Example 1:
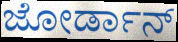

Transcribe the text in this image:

ಜೋರ್ಡಾನ್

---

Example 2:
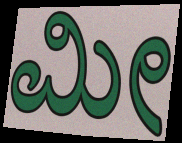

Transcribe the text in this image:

ಮೀ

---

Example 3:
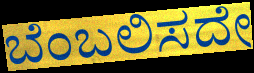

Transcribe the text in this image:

ಬೆಂಬಲಿಸದೇ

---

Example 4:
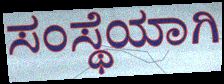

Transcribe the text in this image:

ಸಂಸ್ಥೆಯಾಗಿ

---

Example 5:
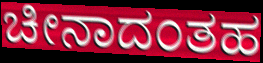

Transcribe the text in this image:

ಚೀನಾದಂತಹ